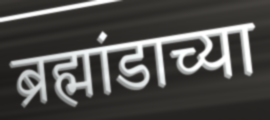
ब्रह्मांडाच्या